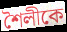
শৈলীকে